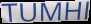
TUMHI